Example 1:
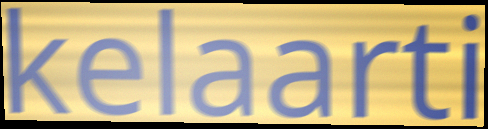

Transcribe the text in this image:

kelaarti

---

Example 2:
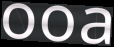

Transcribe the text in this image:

ooa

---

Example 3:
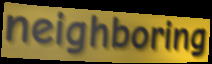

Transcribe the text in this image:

neighboring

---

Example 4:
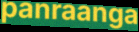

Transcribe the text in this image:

panraanga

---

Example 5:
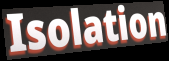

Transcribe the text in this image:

Isolation